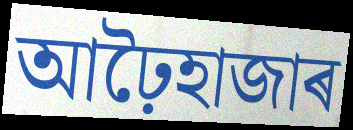
আঢ়ৈহাজাৰ